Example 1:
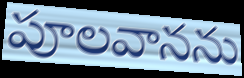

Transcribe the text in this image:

పూలవానను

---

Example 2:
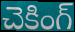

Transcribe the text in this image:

చెకింగ్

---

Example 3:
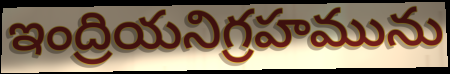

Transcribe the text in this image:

ఇంద్రియనిగ్రహమును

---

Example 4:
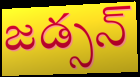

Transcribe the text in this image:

జడ్సన్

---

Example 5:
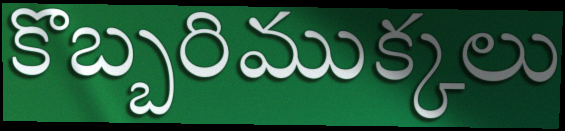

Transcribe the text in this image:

కొబ్బరిముక్కలు